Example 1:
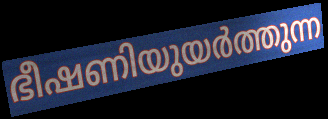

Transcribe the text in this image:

ഭീഷണിയുയർത്തുന്ന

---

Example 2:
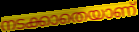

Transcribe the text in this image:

നടക്കാതെയാണ്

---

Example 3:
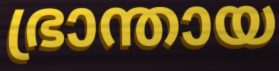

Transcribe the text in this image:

ഭ്രാന്തായ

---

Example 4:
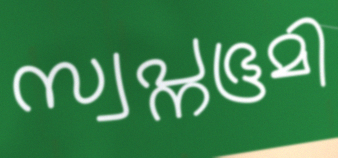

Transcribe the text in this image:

സ്വപ്നഭൂമി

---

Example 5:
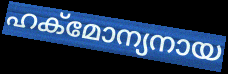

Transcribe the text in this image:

ഹക്മോന്യനായ